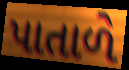
પાતાળે